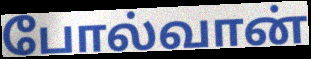
போல்வான்